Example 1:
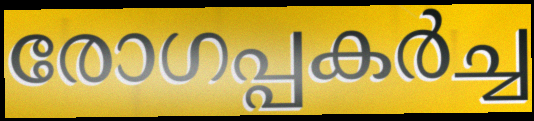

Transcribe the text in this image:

രോഗപ്പകർച്ച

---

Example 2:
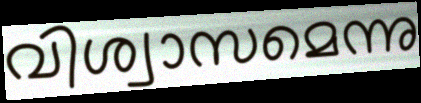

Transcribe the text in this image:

വിശ്വാസമെന്നു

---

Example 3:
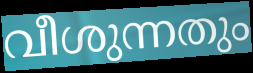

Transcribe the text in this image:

വീശുന്നതും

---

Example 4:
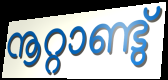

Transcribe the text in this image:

നൂറ്റാണ്ടു്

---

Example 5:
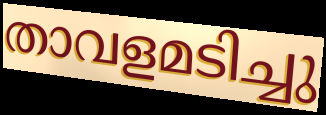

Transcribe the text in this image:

താവളമടിച്ചു